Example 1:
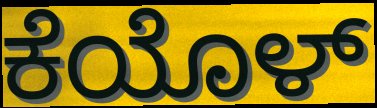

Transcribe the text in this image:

ಕೆಯೊಳ್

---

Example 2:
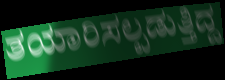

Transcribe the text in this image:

ತಯಾರಿಸಲ್ಪಡುತ್ತಿದ್ದ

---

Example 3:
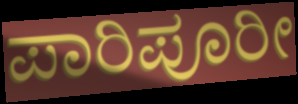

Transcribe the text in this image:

ಪಾರಿಪೂರೀ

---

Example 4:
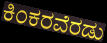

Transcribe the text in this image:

ಕಿಂಕರವೆರಡು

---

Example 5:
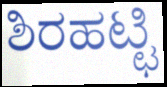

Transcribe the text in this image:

ಶಿರಹಟ್ಟಿ